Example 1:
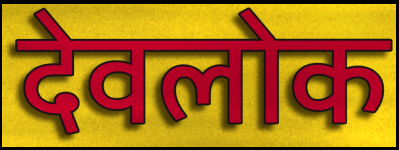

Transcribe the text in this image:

देवलोक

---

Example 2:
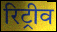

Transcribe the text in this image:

रिट्रीव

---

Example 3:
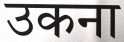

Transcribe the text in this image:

उकना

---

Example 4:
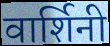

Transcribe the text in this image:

वार्शिनी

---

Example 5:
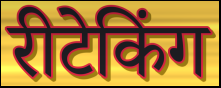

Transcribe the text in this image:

रीटेकिंग